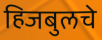
हिजबुलचे